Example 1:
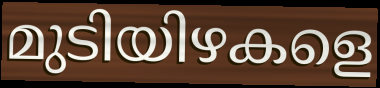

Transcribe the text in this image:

മുടിയിഴകളെ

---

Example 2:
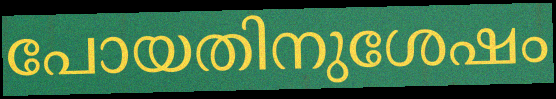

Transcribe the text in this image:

പോയതിനുശേഷം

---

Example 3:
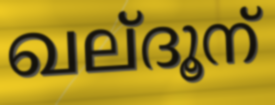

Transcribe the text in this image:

ഖല്ദൂന്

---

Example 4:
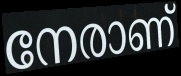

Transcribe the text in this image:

നേരാണ്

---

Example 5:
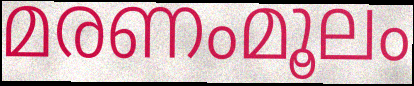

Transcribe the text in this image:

മരണംമൂലം